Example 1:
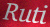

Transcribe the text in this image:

Ruti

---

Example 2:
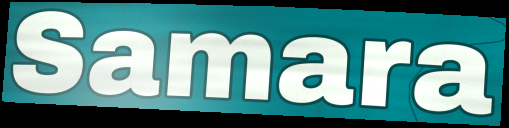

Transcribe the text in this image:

Samara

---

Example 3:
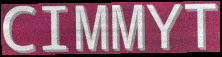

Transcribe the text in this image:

CIMMYT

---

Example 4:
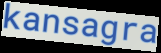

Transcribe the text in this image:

kansagra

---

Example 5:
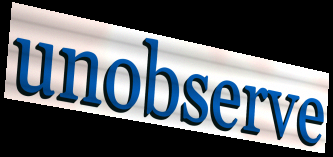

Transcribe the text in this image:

unobserve